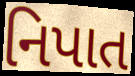
નિપાત